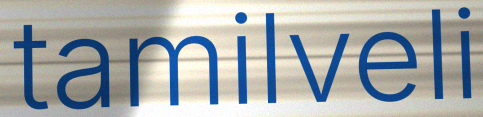
tamilveli